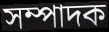
সম্পাদক